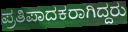
ಪ್ರತಿಪಾದಕರಾಗಿದ್ದರು